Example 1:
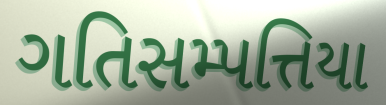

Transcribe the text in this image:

ગતિસમ્પત્તિયા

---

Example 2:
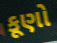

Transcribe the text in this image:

કૂણો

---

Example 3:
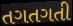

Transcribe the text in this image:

તગતગતી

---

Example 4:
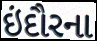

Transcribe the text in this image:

ઇંદૌરના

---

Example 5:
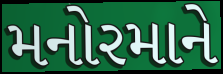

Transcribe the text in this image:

મનોરમાને